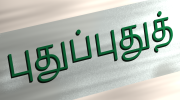
புதுப்புதுத்